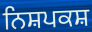
ਨਿਸ਼ਪਕਸ਼